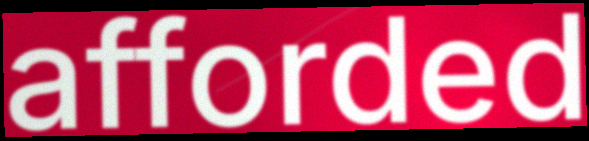
afforded